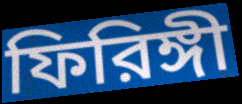
ফিরিঙ্গী